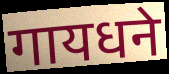
गायधने